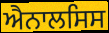
ਐਨਾਲਸਿਸ